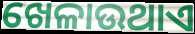
ଖେଳାଉଥାଏ